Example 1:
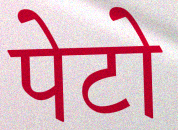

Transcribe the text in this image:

पेटो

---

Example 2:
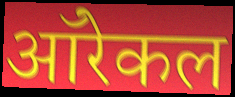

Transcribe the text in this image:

ऑरेकल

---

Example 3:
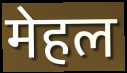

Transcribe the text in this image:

मेहल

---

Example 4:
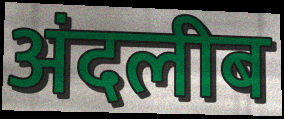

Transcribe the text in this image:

अंदलीब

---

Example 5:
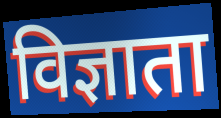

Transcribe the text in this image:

विज्ञाता